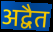
अद्वैत